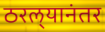
ठरल्यानंतर